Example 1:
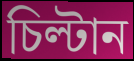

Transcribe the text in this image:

চিল্টান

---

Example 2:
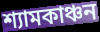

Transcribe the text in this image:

শ্যামকাঞ্চন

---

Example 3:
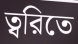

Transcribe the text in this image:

ত্বরিতে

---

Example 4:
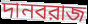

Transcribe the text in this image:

দানবরাজ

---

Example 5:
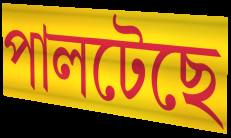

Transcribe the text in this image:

পালটেছে